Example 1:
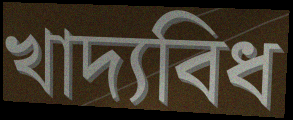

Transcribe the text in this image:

খাদ্যবিধ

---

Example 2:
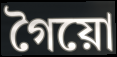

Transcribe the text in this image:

গৈয়ো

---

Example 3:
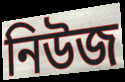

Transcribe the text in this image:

নিউজ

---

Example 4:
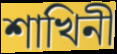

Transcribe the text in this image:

শাখিনী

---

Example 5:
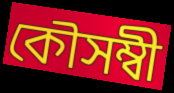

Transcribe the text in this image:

কৌসম্বী